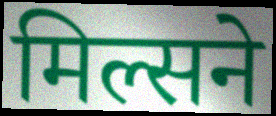
मिल्सने